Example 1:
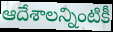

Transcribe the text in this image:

ఆదేశాలన్నింటికీ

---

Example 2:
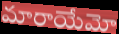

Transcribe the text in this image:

మారాయేమో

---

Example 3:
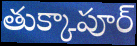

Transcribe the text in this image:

తుక్కాపూర్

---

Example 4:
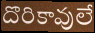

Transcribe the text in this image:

దొరికావులే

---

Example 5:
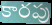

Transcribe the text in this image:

కారపు